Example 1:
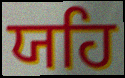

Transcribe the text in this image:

ਯਹਿ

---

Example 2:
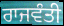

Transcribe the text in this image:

ਰਾਜਵੰਤੀ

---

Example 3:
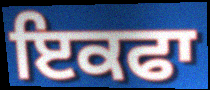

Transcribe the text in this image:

ਇਕਫਾ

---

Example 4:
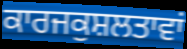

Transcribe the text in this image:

ਕਾਰਜਕੁਸ਼ਲਤਾਵਾਂ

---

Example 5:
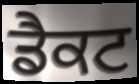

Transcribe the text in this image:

ਡੈਕਟ